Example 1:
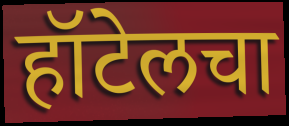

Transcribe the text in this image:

हॉटेलचा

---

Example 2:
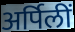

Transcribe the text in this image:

अर्पिलीं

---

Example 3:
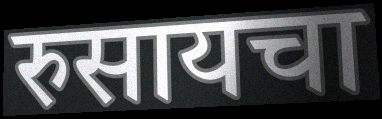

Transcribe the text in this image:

रुसायचा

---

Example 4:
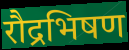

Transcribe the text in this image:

रौद्रभिषण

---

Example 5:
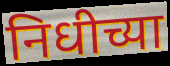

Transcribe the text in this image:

निधीच्या